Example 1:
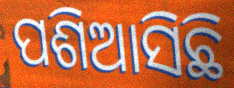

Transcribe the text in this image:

ପଶିଆସିଛି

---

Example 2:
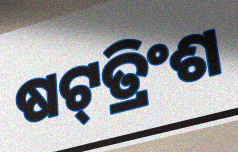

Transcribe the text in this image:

ଷଟ୍‌ତ୍ରିଂଶ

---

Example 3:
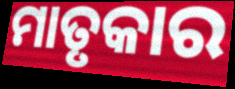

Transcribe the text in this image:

ମାତୃକାର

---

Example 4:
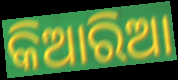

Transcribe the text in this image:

କିଆରିଆ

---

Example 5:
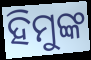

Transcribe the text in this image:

ହିମୁଙ୍କ